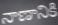
నాణానికి